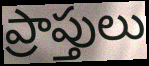
ప్రాప్తులు